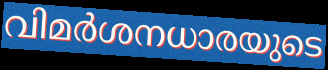
വിമർശനധാരയുടെ